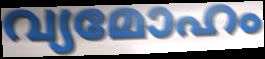
വ്യമോഹം